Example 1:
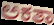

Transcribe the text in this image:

ಅಕತಾ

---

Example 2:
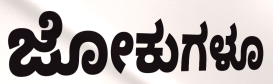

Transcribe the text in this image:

ಜೋಕುಗಳೂ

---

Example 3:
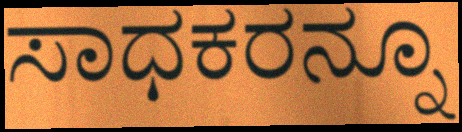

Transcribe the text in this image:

ಸಾಧಕರನ್ನೂ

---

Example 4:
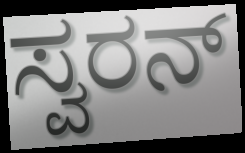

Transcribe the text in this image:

ಸ್ವರನ್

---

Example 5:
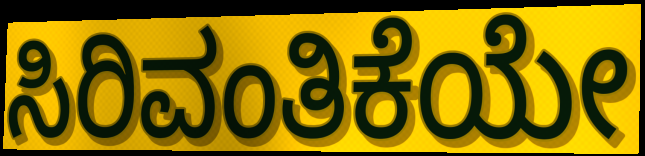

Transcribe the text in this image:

ಸಿರಿವಂತಿಕೆಯೇ